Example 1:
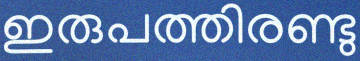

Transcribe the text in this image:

ഇരുപത്തിരണ്ടു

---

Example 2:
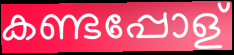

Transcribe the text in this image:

കണ്ടപ്പോള്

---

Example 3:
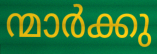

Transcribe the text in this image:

ന്മാർക്കു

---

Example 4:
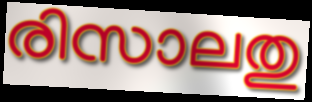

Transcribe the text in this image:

രിസാലതു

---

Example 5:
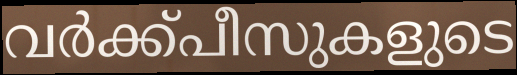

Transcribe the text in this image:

വർക്ക്പീസുകളുടെ